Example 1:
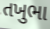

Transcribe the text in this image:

તખુભા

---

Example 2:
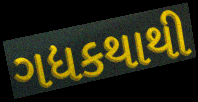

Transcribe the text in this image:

ગદ્યકથાથી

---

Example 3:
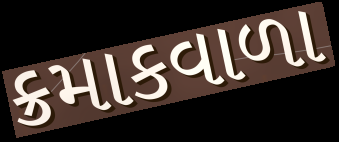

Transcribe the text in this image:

ક્રમાકવાળા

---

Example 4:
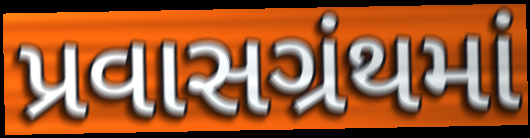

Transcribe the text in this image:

પ્રવાસગ્રંથમાં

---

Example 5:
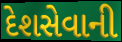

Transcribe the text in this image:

દેશસેવાની